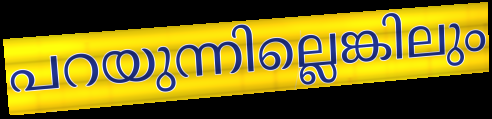
പറയുന്നില്ലെങ്കിലും